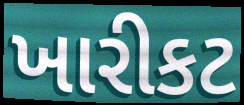
ખારીકટ